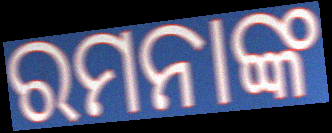
ରମନାଙ୍କ